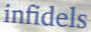
infidels